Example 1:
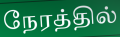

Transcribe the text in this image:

நேரத்தில்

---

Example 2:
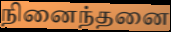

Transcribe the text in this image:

நினைந்தனை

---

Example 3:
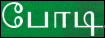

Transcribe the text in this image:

போடி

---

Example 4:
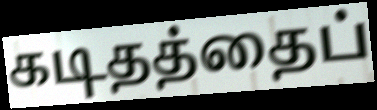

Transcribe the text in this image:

கடிதத்தைப்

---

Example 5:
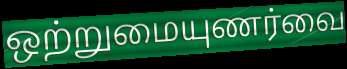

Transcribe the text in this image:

ஒற்றுமையுணர்வை